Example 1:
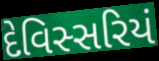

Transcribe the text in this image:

દેવિસ્સરિયં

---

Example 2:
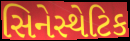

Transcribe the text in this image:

સિનેસ્થેટિક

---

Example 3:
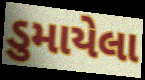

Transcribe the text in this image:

ડુમાયેલા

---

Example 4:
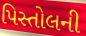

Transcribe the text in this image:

પિસ્તોલની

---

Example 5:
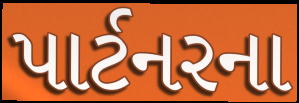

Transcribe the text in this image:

પાર્ટનરના